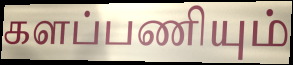
களப்பணியும்